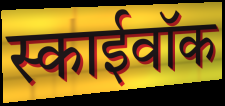
स्काईवॉक